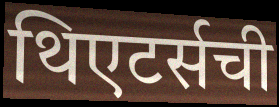
थिएटर्सची